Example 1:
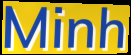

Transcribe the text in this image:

Minh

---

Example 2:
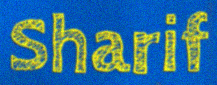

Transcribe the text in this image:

Sharif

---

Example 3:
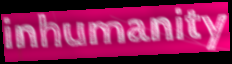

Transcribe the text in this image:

inhumanity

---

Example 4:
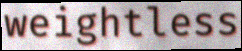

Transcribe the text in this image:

weightless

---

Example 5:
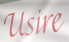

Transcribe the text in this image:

Usire